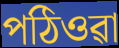
পঠিওৱা